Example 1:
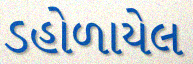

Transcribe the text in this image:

ડહોળાયેલ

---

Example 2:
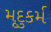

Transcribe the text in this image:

મૃદુકર્મ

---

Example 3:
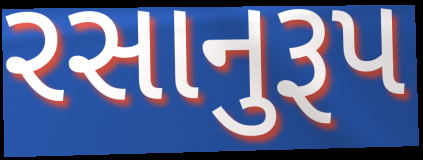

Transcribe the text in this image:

રસાનુરૂપ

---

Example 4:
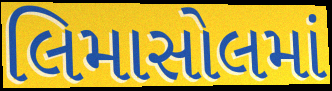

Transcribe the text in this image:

લિમાસોલમાં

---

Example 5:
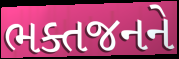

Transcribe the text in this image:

ભક્તજનને